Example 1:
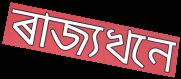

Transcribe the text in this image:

ৰাজ্যখনে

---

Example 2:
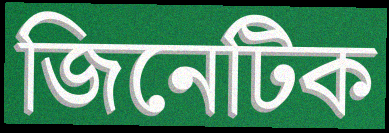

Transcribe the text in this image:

জিনেটিক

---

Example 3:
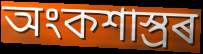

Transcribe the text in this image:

অংকশাস্ত্ৰৰ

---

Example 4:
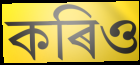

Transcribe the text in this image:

কৰিও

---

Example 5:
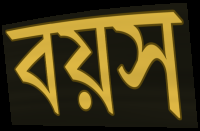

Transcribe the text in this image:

বয়স